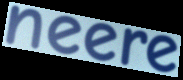
neere